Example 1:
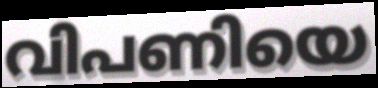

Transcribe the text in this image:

വിപണിയെ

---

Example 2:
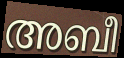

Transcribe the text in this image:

അബീ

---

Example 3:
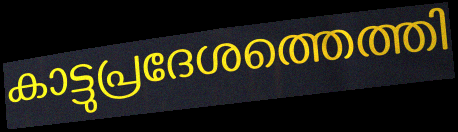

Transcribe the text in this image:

കാട്ടുപ്രദേശത്തെത്തി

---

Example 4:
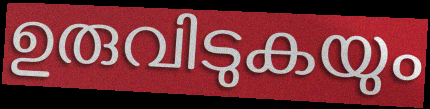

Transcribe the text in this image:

ഉരുവിടുകയും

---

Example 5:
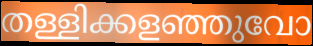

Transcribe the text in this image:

തള്ളിക്കളഞ്ഞുവോ